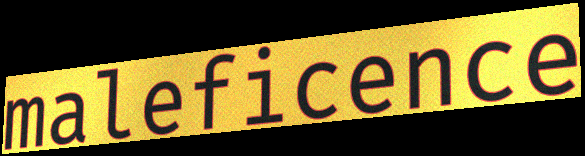
maleficence